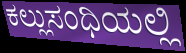
ಕಲ್ಲುಸಂಧಿಯಲ್ಲಿ